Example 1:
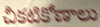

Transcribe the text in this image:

చీకటికోణాలు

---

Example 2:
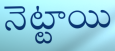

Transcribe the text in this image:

నెట్టాయి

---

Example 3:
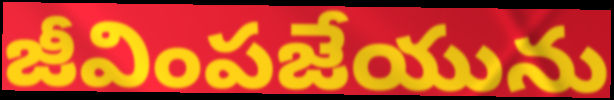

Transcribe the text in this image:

జీవింపజేయును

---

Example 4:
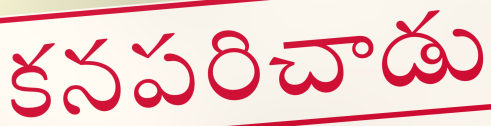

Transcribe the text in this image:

కనపరిచాడు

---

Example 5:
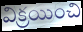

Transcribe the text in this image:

విక్రయించి